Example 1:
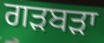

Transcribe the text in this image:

ਗੜਬੜਾ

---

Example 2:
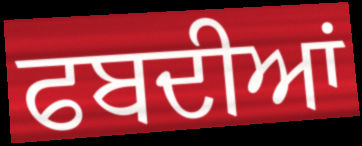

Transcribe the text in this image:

ਫਬਦੀਆਂ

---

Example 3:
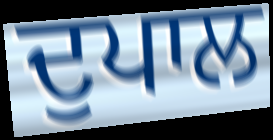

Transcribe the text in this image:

ਦੁਪਾਲ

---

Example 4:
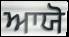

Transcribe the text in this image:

ਆਯੋ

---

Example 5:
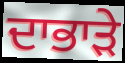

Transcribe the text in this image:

ਦਾਭਾੜੇ